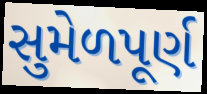
સુમેળપૂર્ણ